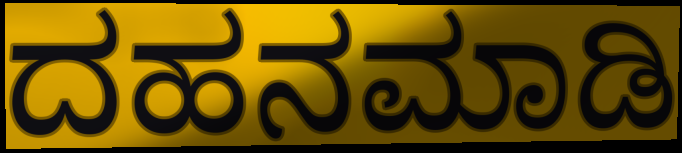
ದಹನಮಾಡಿ